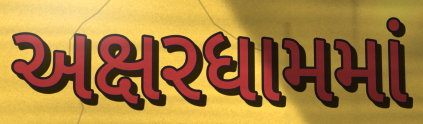
અક્ષરધામમાં